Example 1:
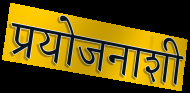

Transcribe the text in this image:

प्रयोजनाशी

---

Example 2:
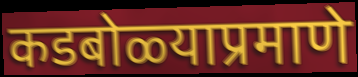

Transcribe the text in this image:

कडबोळ्याप्रमाणे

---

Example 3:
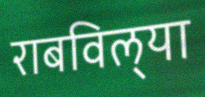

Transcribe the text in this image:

राबविल्या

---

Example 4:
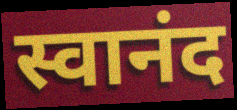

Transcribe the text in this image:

स्वानंद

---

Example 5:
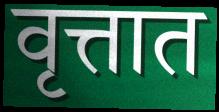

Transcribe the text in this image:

वृत्तात